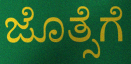
ಜೊತ್ಸೆಗೆ